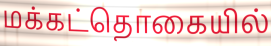
மக்கட்தொகையில்